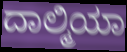
ದಾಲ್ಮಿಯಾ